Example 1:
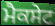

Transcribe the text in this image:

ਮੈਕਸੇਟ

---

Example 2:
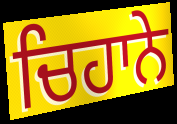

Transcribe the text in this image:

ਚਿਹਾਨੇ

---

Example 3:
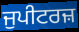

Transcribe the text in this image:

ਜੁਪੀਟਰਜ਼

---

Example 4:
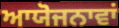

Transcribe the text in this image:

ਆਯੋਜਨਾਵਾਂ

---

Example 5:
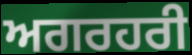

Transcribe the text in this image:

ਅਗਰਹਰੀ